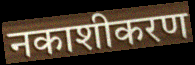
नकाशीकरण